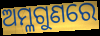
ଅମ୍ଳଗୁଣରେ